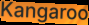
Kangaroo